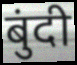
बुंदी